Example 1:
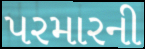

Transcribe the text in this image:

પરમારની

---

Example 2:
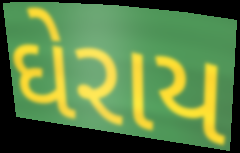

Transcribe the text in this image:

ઘેરાય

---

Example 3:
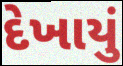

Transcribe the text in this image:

દેખાયું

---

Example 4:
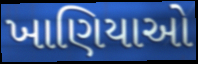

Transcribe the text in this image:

ખાણિયાઓ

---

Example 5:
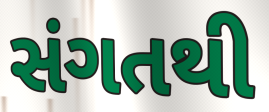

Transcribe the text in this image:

સંગતથી